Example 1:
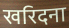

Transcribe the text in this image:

खरिदना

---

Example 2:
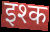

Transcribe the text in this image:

इश्क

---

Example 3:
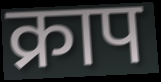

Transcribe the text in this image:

क्राप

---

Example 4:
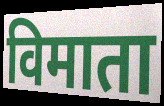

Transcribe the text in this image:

विमाता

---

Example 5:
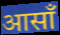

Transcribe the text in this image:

आसाँ